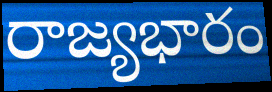
రాజ్యభారం